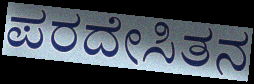
ಪರದೇಸಿತನ